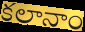
కలానాం